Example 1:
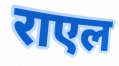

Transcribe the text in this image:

राएल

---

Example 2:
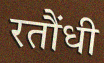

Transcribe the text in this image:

रतौंधी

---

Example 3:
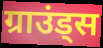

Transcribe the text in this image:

ग्राउंड्स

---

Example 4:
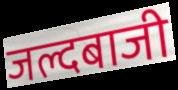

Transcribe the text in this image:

जल्दबाजी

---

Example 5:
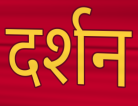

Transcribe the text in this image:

दर्शन